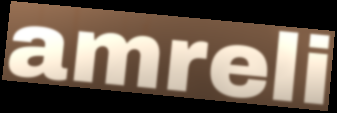
amreli